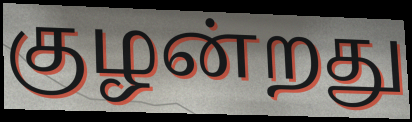
குழன்றது